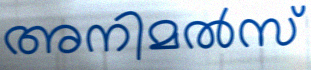
അനിമൽസ്